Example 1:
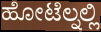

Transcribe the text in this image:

ಹೋಟೆಲ್ನಲ್ಲಿ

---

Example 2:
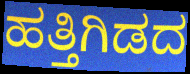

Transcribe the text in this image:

ಹತ್ತಿಗಿಡದ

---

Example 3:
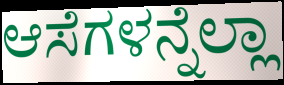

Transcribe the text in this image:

ಆಸೆಗಳನ್ನೆಲ್ಲಾ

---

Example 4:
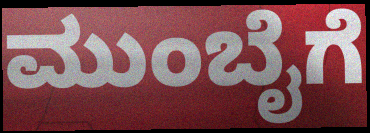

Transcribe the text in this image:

ಮುಂಬೈಗೆ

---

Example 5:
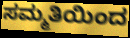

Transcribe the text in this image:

ಸಮ್ಮತಿಯಿಂದ